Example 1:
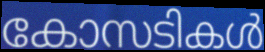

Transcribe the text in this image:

കോസടികൾ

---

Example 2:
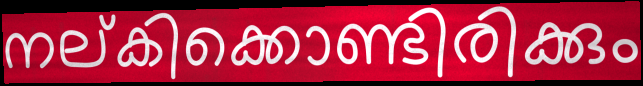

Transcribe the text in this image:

നല്കിക്കൊണ്ടിരിക്കും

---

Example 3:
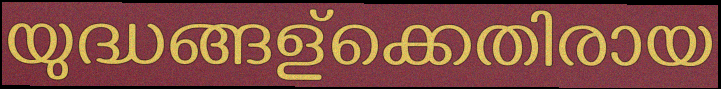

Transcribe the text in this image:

യുദ്ധങ്ങള്ക്കെതിരായ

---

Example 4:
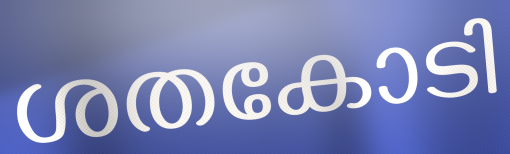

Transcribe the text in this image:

ശതകോടി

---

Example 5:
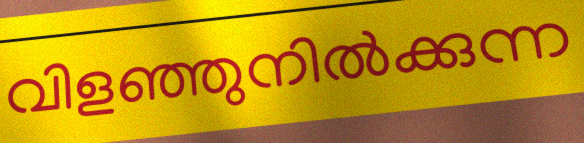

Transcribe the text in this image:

വിളഞ്ഞുനിൽക്കുന്ന